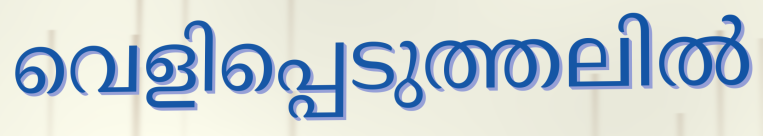
വെളിപ്പെടുത്തലിൽ